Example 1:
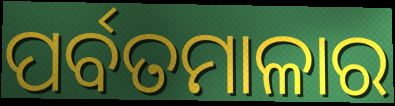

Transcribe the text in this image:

ପର୍ବତମାଳାର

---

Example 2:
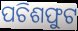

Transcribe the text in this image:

ପଚିଶଫୁଟ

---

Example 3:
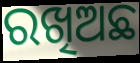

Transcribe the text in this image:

ରଖିଅଛ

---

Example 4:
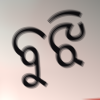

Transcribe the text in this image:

ବୁଝି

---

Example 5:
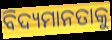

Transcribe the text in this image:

ବିଦ୍ୟମାନତାକୁ